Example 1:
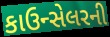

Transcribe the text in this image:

કાઉન્સેલરની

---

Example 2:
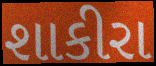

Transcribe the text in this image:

શાકીરા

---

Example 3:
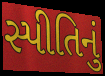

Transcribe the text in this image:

સ્પીતિનું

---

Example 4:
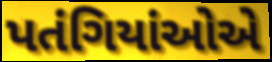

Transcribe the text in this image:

પતંગિયાંઓએ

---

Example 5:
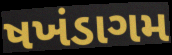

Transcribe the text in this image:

ષખંડાગમ